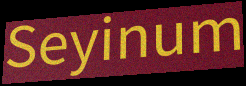
Seyinum